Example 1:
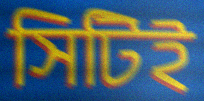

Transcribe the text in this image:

সিটিই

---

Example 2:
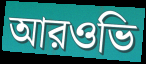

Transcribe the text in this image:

আরওভি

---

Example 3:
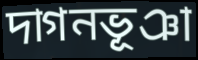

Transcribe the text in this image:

দাগনভূঞা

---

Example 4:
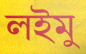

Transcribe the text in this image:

লইমু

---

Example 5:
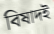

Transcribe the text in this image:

বিষাদই